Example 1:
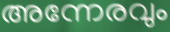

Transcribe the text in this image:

അന്നേരവും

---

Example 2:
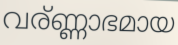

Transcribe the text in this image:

വര്ണ്ണാഭമായ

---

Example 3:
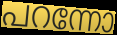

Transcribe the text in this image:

പറന്നോ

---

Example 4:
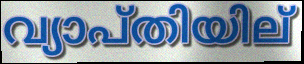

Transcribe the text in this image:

വ്യാപ്തിയില്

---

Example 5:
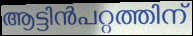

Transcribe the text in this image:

ആട്ടിൻപറ്റത്തിന്